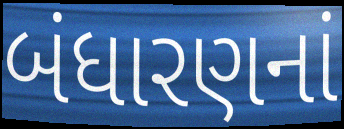
બંધારણનાં